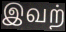
இவற்